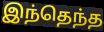
இந்தெந்த